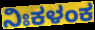
ನಿಃಕಳಂಕ